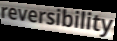
reversibility